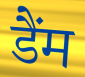
डैंम